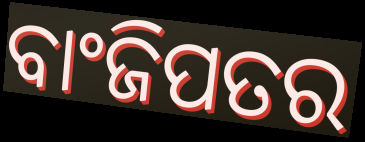
ବାଂଜିପତର